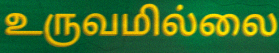
உருவமில்லை